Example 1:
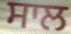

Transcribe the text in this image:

ਸਾਲ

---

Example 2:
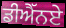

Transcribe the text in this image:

ਡੀਐੱਨਏ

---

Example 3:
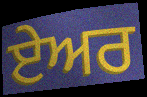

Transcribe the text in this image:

ਏਅਰ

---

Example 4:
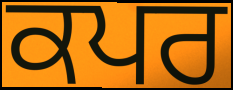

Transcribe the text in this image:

ਕਪਰ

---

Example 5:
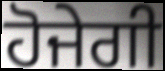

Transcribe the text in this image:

ਹੋਜੇਗੀ